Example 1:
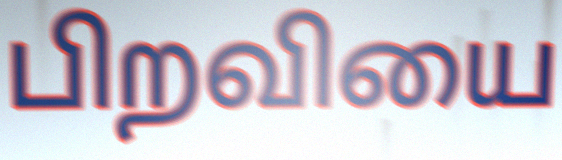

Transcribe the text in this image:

பிறவியை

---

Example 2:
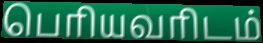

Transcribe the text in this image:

பெரியவரிடம்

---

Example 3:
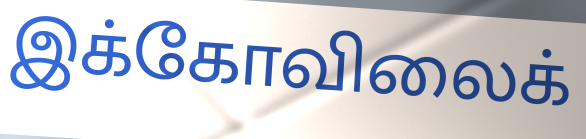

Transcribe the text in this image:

இக்கோவிலைக்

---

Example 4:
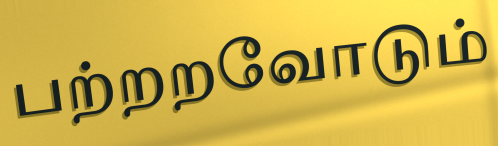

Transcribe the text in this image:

பற்றறவோடும்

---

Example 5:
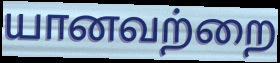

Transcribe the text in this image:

யானவற்றை